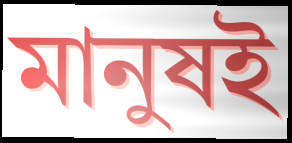
মানুষই